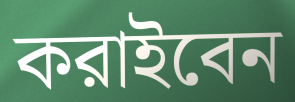
করাইবেন